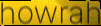
howrah